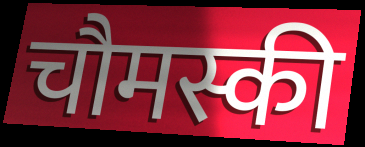
चौमस्की